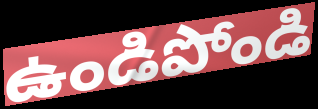
ఉండిపోండి